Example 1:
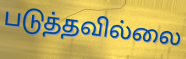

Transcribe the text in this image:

படுத்தவில்லை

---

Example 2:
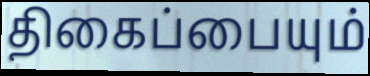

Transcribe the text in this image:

திகைப்பையும்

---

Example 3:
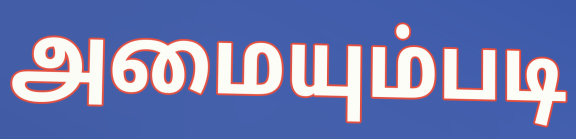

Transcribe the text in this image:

அமையும்படி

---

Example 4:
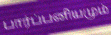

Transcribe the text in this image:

பார்ப்பனியமும்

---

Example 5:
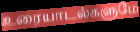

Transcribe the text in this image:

உரையாடல்களுமே